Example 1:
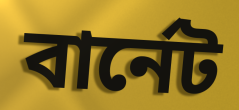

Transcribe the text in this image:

বার্নেট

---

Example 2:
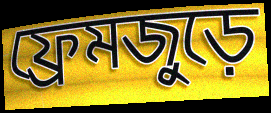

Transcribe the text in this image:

ফ্রেমজুড়ে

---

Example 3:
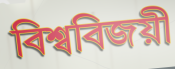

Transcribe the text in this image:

বিশ্ববিজয়ী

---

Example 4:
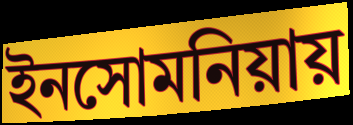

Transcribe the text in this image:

ইনসোমনিয়ায়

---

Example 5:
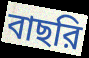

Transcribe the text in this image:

বাছরি